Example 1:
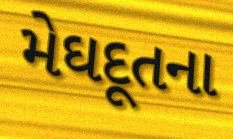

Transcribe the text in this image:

મેઘદૂતના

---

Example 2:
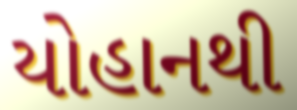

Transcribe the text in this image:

યોહાનથી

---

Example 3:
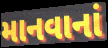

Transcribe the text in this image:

માનવાનાં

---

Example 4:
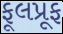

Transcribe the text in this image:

ફૂલપ્રૂફ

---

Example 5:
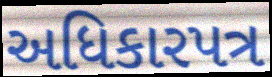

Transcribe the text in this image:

અધિકારપત્ર